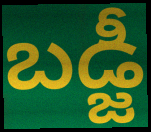
బడ్జీ